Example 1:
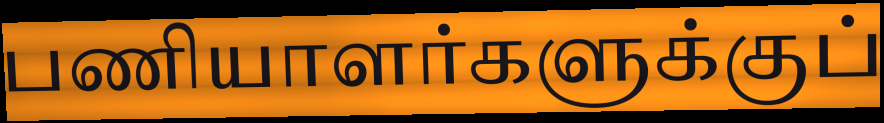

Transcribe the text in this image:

பணியாளர்களுக்குப்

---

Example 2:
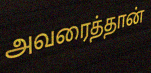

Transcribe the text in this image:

அவரைத்தான்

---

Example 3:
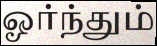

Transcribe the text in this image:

ஓர்ந்தும்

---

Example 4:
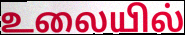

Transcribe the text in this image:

உலையில்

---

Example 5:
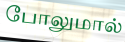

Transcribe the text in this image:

போலுமால்